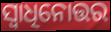
ସ୍ୱାଧିନୋତ୍ତର